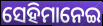
ସେହିମାନେଇ